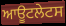
ਆਊਟਲੇਟਸ